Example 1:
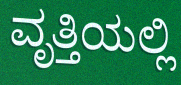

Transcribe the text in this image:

ವೃತ್ತಿಯಲ್ಲಿ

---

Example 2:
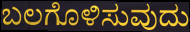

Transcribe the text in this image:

ಬಲಗೊಳಿಸುವುದು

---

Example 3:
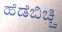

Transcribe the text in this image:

ಹೆಡೆಬಿಚ್ಚಿ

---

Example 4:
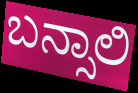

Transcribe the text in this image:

ಬನ್ಸಾಲಿ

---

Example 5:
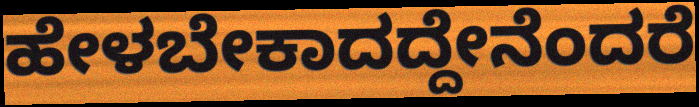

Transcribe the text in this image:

ಹೇಳಬೇಕಾದದ್ದೇನೆಂದರೆ